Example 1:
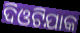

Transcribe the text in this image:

ଦିଓଟିଯାକ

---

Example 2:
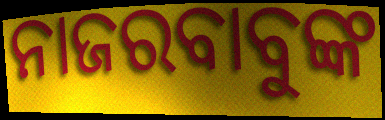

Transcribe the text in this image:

ନାଜରବାବୁଙ୍କ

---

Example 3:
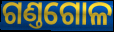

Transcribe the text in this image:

ଗଣ୍ତଗୋଳ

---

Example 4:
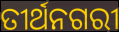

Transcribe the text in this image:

ତୀର୍ଥନଗରୀ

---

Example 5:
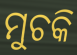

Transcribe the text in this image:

ମୁଚକି